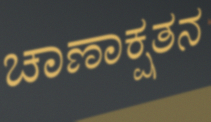
ಚಾಣಾಕ್ಷತನ